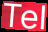
Tel